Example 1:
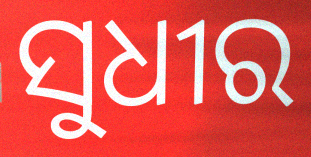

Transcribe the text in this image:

ସୁଧୀର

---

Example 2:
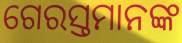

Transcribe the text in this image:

ଗେରସ୍ତମାନଙ୍କ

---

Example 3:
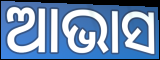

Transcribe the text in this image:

ଆଭାସ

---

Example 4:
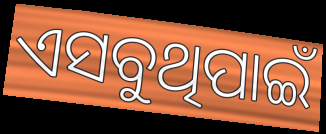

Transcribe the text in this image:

ଏସବୁଥିପାଇଁ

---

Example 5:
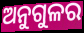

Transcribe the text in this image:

ଅନୁଗୁଳର